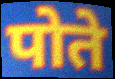
पोते